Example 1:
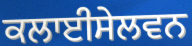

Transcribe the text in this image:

ਕਲਾਈਸੇਲਵਨ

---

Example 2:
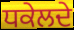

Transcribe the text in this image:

ਧਕੇਲਦੇ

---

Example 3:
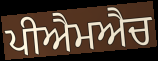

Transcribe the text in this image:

ਪੀਐਮਐਚ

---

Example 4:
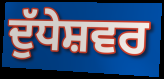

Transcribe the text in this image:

ਦੁੱਧੇਸ਼ਵਰ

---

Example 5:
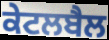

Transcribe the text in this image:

ਕੇਟਲਬੈਲ